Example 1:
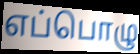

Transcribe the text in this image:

எப்பொழு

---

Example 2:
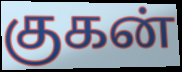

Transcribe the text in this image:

குகன்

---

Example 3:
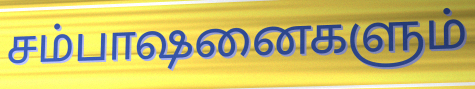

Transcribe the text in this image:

சம்பாஷனைகளும்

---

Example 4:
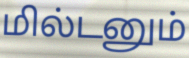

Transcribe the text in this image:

மில்டனும்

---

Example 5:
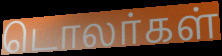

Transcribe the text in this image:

டொலர்கள்